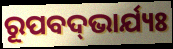
ରୂପବଦ୍‌ଭାର୍ଯ୍ୟଃ